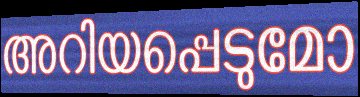
അറിയപ്പെടുമോ